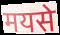
मयसे